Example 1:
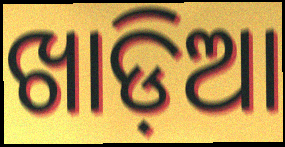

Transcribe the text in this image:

ଖାଡ଼ିଆ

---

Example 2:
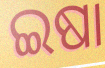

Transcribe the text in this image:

ଇଷା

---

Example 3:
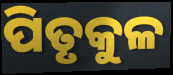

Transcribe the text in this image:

ପିତୃକୁଳ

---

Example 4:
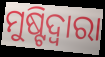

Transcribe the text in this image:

ମୁଷ୍ଟିଦ୍ୱାରା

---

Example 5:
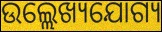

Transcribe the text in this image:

ଉଲ୍ଲେଖ୍ୟଯୋଗ୍ୟ